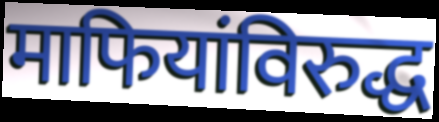
माफियांविरुद्ध